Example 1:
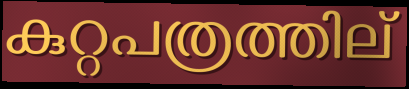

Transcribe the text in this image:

കുറ്റപത്രത്തില്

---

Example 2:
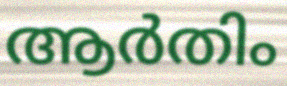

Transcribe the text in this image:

ആർതിം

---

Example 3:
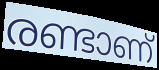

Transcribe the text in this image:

രണ്ടാണ്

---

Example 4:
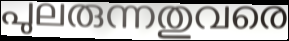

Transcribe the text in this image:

പുലരുന്നതുവരെ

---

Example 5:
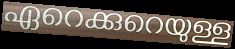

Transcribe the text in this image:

ഏറെക്കുറെയുള്ള